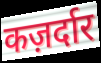
कज़र्दार